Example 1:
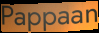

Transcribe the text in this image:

Pappaan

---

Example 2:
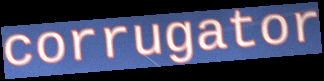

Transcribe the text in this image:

corrugator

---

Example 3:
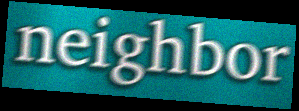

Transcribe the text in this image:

neighbor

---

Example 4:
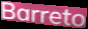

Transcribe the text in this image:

Barreto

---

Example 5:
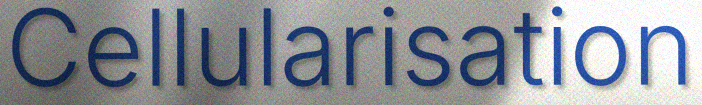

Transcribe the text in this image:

Cellularisation